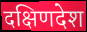
दक्षिणदेश